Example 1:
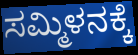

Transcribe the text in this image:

ಸಮ್ಮಿಳನಕ್ಕೆ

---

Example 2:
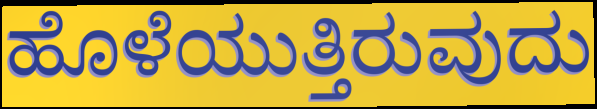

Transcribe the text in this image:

ಹೊಳೆಯುತ್ತಿರುವುದು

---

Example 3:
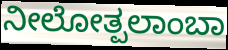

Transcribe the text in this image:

ನೀಲೋತ್ಪಲಾಂಬಾ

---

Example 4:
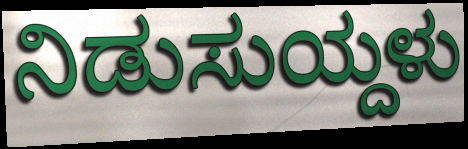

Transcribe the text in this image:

ನಿಡುಸುಯ್ದಳು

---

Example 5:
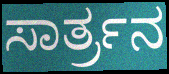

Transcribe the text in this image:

ಸಾರ್ತ್ರನ